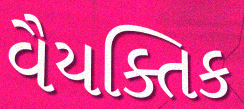
વૈયક્તિક